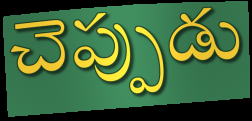
చెప్పుడు